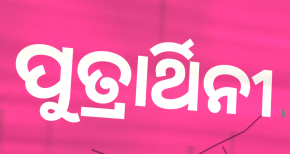
ପୁତ୍ରାର୍ଥିନୀ